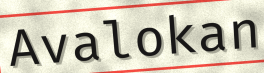
Avalokan